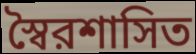
স্বৈরশাসিত